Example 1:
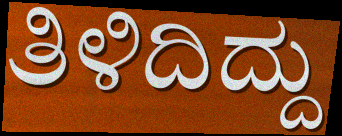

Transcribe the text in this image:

ತಿಳಿದಿದ್ದು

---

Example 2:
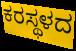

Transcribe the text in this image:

ಕರಸ್ಥಳದ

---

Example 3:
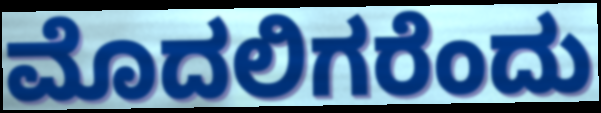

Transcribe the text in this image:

ಮೊದಲಿಗರೆಂದು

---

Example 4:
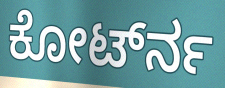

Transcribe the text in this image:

ಕೋರ್ಟ್‍ನ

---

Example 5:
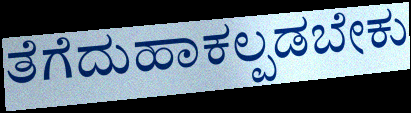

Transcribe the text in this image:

ತೆಗೆದುಹಾಕಲ್ಪಡಬೇಕು